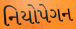
નિયોપેગન